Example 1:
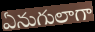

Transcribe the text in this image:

ఏనుగులాగా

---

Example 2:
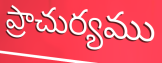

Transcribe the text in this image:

ప్రాచుర్యము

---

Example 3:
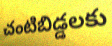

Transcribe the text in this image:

చంటిబిడ్డలకు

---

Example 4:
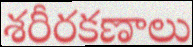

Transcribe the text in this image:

శరీరకణాలు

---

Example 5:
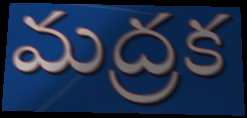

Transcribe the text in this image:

మద్రక